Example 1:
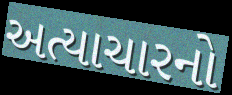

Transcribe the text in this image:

અત્યાચારનો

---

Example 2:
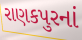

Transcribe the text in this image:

રાણકપુરનાં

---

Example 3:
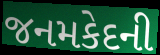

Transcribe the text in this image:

જનમકેદની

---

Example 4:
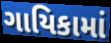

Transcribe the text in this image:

ગાયિકામાં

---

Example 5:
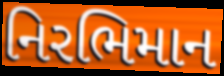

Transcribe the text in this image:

નિરભિમાન